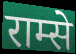
राम्से